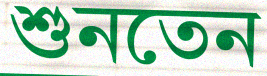
শুনতেন